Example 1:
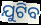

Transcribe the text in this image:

ଯୁଟିବ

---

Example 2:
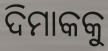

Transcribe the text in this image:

ଦିମାକକୁ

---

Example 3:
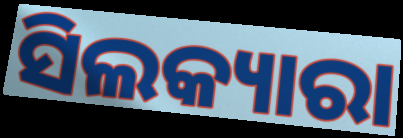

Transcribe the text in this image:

ସିଲକ୍ୟାରା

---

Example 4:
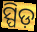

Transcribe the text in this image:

ସ୍ପିଡ଼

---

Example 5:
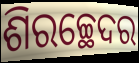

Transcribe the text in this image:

ଶିରଚ୍ଛେଦର